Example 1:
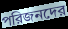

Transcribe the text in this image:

পরিজনদের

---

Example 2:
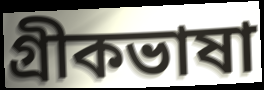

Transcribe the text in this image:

গ্রীকভাষা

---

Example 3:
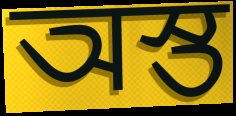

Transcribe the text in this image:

অস্ত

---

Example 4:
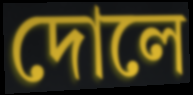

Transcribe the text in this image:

দোলে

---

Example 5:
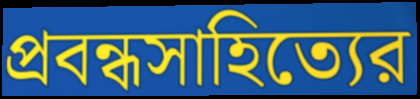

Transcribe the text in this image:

প্রবন্ধসাহিত্যের